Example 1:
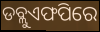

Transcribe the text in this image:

ଡବ୍ଲୁଏଫପିରେ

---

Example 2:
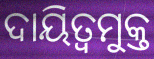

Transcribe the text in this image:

ଦାୟିତ୍ବମୁକ୍ତ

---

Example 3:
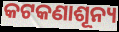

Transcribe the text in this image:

କଟକଣାଶୂନ୍ୟ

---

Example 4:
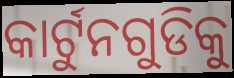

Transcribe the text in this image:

କାର୍ଟୁନଗୁଡିକୁ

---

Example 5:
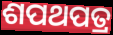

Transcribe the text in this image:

ଶପଥପତ୍ର